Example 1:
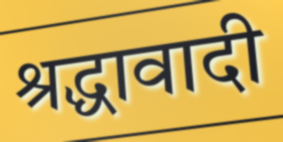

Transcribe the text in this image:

श्रद्धावादी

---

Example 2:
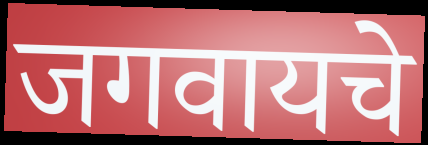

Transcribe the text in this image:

जगवायचे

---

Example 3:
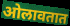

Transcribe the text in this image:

ओलावतात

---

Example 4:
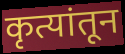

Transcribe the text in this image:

कृत्यांतून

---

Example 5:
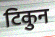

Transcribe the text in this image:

टिकुन